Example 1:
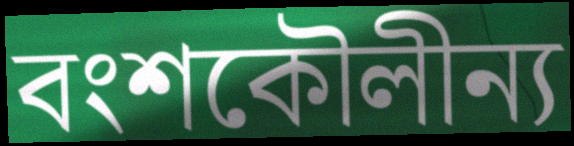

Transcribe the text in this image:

বংশকৌলীন্য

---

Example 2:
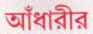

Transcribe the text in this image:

আঁধারীর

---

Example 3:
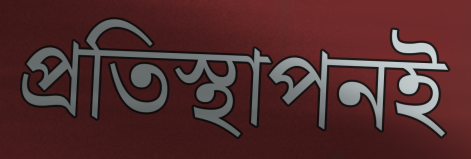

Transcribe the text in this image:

প্রতিস্থাপনই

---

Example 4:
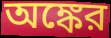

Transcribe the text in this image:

অঙ্কের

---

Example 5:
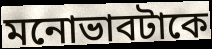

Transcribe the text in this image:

মনোভাবটাকে